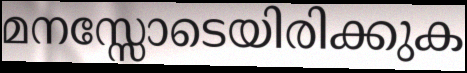
മനസ്സോടെയിരിക്കുക